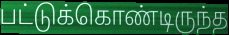
பட்டுக்கொண்டிருந்த